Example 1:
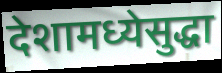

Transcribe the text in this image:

देशामध्येसुद्धा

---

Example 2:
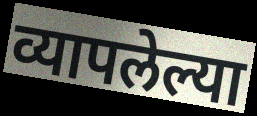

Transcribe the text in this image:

व्यापलेल्या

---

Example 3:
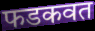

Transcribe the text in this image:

फडकवत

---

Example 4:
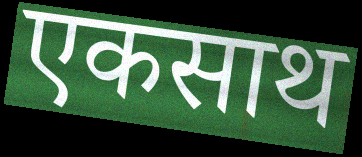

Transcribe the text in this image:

एकसाथ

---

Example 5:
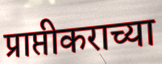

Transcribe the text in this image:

प्राप्तीकराच्या